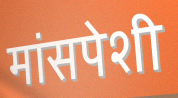
मांसपेशी